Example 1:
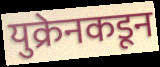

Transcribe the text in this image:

युक्रेनकडून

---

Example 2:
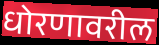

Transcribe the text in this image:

धोरणावरील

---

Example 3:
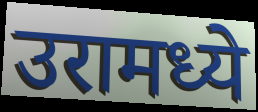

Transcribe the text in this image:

उरामध्ये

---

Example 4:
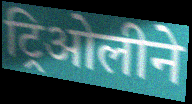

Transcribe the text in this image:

ट्रिओलीने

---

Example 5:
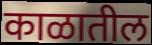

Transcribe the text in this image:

काळातील